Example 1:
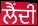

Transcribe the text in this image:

ਲੈਂਦੀ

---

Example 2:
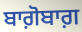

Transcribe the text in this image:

ਬਾਗ਼ੋਬਾਗ਼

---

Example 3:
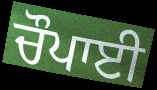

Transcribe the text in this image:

ਚੌਪਾਈ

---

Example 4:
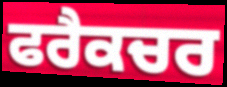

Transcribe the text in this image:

ਫਰੈਕਚਰ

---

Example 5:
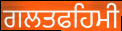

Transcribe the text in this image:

ਗਲਤਫਹਿਮੀ